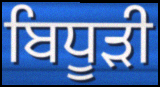
ਬਿਧੂੜੀ